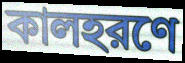
কালহরণে